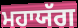
ਮਹਾਯੱਗ